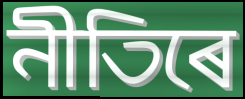
নীতিৰে